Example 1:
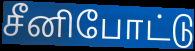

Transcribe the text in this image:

சீனிபோட்டு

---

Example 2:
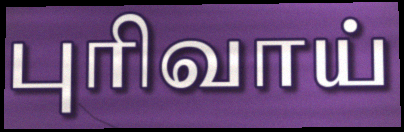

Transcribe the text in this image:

புரிவாய்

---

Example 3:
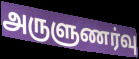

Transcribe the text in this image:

அருளுணர்வு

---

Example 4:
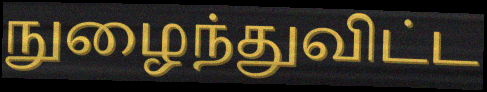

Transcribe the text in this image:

நுழைந்துவிட்ட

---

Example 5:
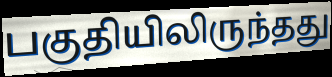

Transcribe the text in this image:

பகுதியிலிருந்தது